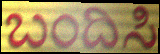
ಬಂದಿಸಿ